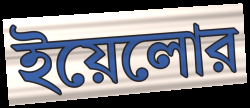
ইয়েলোর